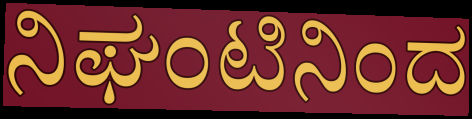
ನಿಘಂಟಿನಿಂದ